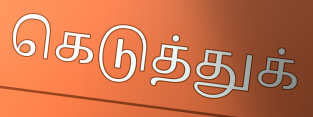
கெடுத்துக்